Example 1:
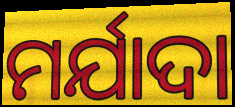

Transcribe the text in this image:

ମର୍ଯାଦା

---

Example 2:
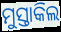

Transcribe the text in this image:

ମୁସ୍ତାକିଲ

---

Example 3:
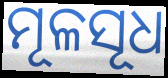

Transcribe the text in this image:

ମୂଳସୂଧ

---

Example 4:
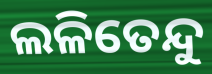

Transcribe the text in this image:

ଲଳିତେନ୍ଦୁ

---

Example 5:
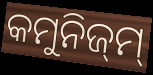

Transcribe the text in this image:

କମୁନିଜ୍‌ମ୍